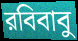
রবিবাবু